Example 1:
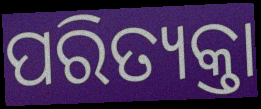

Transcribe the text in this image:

ପରିତ୍ୟକ୍ତା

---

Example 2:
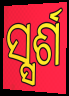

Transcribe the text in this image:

ସ୍ସର୍ଶ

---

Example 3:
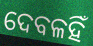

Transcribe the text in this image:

ଦେବଳହିଁ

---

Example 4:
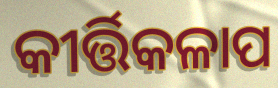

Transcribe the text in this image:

କୀର୍ତ୍ତିକଳାପ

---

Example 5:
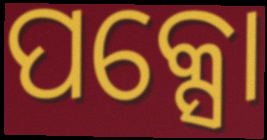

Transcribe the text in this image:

ପକ୍ସୋ